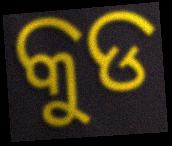
କୁଡ